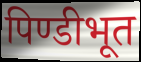
पिण्डीभूत